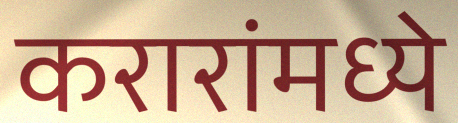
करारांमध्ये